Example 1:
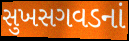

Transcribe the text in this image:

સુખસગવડનાં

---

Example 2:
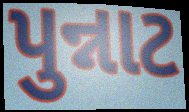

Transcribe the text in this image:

પુન્નાટ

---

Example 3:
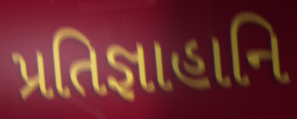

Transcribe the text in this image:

પ્રતિજ્ઞાહાનિ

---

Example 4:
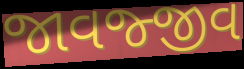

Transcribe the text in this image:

જાવજ્જીવ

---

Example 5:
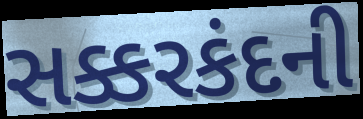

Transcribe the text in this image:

સક્કરકંદની